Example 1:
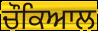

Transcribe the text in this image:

ਚੌਕਿਆਲ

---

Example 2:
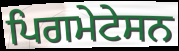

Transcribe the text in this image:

ਪਿਗਮੇਟੇਸਨ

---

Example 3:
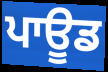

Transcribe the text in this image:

ਪਾਊਡ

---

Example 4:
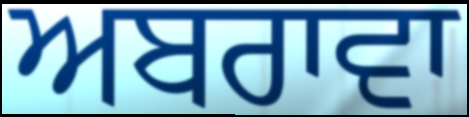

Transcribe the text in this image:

ਅਬਰਾਵਾ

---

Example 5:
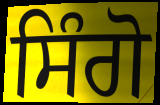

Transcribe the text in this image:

ਸਿੰਗੋ